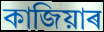
কাজিয়াৰ